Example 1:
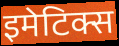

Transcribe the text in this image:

इमेटिक्स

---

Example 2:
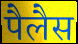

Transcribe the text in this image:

पैलैस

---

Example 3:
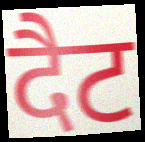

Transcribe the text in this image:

दैट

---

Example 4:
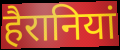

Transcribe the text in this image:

हैरानियां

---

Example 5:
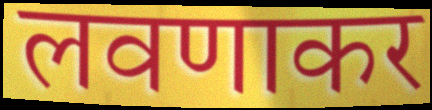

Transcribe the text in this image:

लवणाकर